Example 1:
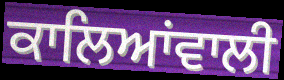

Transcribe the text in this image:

ਕਾਲਿਆਂਵਾਲੀ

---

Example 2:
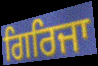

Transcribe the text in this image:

ਗਿਰਿਜਾ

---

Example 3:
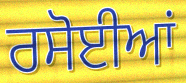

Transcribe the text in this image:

ਰਸੋਈਆਂ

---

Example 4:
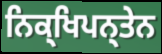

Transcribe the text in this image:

ਨਿਕ੍ਖਿਪਨ੍ਤੇਨ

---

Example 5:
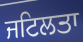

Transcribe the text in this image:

ਜਟਿਲਤਾ